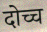
दोच्च